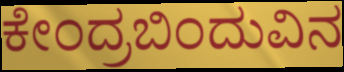
ಕೇಂದ್ರಬಿಂದುವಿನ